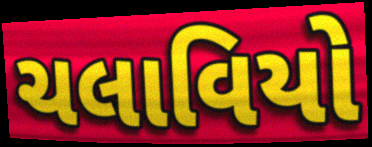
ચલાવિયો